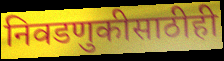
निवडणुकीसाठीही